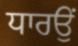
ਧਾਰਉਂ